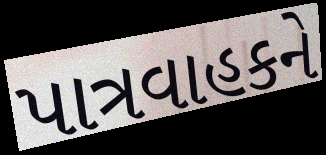
પાત્રવાહકને